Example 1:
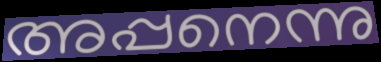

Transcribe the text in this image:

അപ്പനെന്നു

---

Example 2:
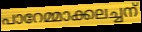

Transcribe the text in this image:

പാറേമ്മാക്കലച്ചന്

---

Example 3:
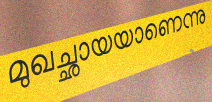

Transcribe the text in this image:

മുഖച്ഛായയാണെന്നു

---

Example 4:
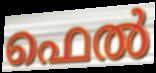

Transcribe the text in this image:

ഫെൽ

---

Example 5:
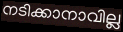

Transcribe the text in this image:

നടിക്കാനാവില്ല